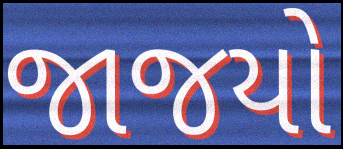
જાજયો